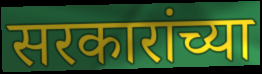
सरकारांच्या